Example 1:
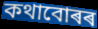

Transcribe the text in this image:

কথাবোৰৰ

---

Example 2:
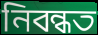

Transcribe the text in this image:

নিবন্ধত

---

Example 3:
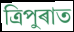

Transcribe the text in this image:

ত্ৰিপুৰাত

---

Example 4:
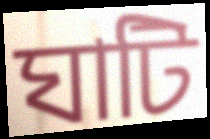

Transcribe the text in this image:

ঘাটি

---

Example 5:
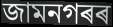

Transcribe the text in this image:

জামনগৰৰ